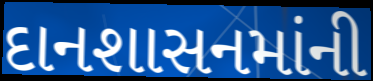
દાનશાસનમાંની